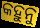
କହୁନୁ